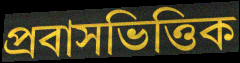
প্রবাসভিত্তিক